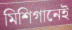
মিশিগানেই